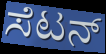
ಸೆಟನ್